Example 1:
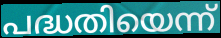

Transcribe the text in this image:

പദ്ധതിയെന്ന്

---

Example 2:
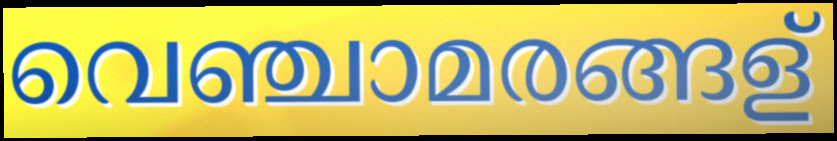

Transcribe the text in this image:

വെഞ്ചാമരങ്ങള്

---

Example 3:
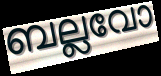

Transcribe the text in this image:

ബല്ലവോ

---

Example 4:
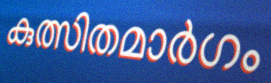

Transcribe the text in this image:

കുത്സിതമാർഗം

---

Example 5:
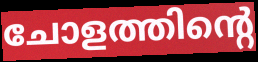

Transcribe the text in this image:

ചോളത്തിന്റെ